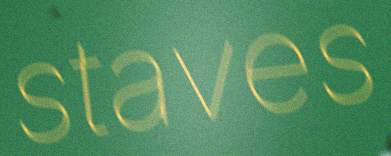
staves